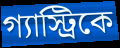
গ্যাস্ট্রিকে